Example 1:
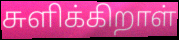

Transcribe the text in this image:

சுளிக்கிறாள்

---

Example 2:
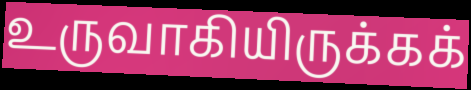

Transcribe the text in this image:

உருவாகியிருக்கக்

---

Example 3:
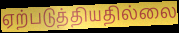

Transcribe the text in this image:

ஏற்படுத்தியதில்லை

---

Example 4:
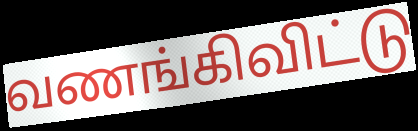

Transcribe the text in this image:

வணங்கிவிட்டு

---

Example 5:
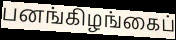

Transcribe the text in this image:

பனங்கிழங்கைப்